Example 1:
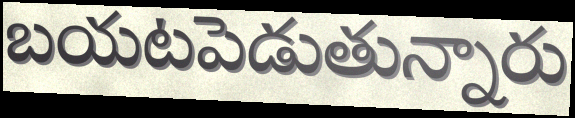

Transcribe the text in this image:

బయటపెడుతున్నారు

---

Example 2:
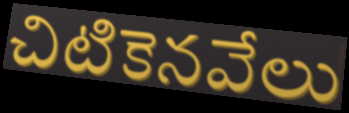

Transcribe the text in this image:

చిటికెనవేలు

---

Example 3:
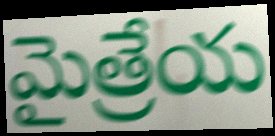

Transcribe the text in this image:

మైత్రేయ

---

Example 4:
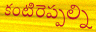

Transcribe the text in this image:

కంటిరెప్పల్ని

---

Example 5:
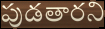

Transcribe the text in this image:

పుడతారని